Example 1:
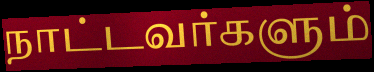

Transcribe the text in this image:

நாட்டவர்களும்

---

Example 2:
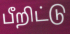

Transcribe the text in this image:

பீறிட்டு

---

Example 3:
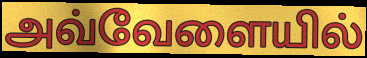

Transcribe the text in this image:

அவ்வேளையில்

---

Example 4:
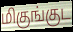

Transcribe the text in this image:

மிகுங்குட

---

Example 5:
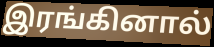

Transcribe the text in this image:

இரங்கினால்